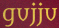
gujju